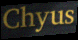
Chyus